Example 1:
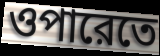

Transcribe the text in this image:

ওপারেতে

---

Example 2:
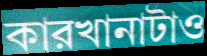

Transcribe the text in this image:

কারখানাটাও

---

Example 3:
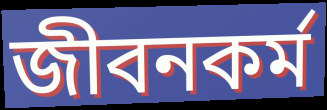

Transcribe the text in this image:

জীবনকর্ম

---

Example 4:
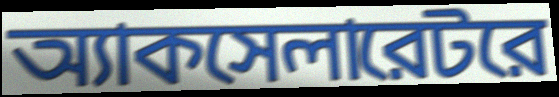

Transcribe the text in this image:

অ্যাকসেলারেটরে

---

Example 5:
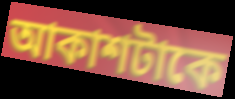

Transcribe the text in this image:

আকাশটাকে